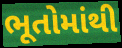
ભૂતોમાંથી